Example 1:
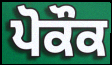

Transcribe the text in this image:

ਪੋਕੌਕ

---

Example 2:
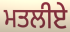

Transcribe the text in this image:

ਮਤਲੀਏ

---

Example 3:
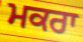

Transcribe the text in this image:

ਮਕਰਾ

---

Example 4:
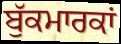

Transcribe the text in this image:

ਬੁੱਕਮਾਰਕਾਂ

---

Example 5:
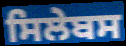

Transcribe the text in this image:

ਸਿਲੇਬਸ